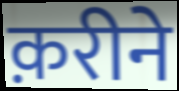
क़रीने